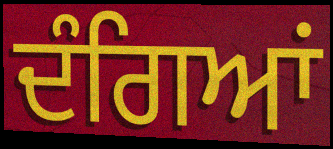
ਦੰਗਿਆਂ